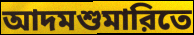
আদমশুমারিতে